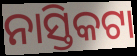
ନାସ୍ତିକଟା